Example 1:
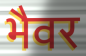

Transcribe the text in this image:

भैवर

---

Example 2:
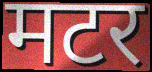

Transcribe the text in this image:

मटर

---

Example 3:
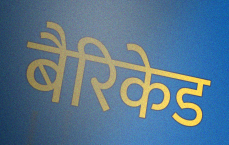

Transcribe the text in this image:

बैरिकेड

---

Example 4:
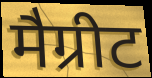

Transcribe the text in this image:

मैग्रीट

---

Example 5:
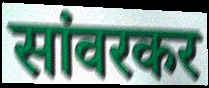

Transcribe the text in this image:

सांवरकर